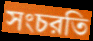
সংচরতি